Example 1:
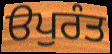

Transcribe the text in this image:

ੳਪੁਰੰਤ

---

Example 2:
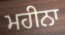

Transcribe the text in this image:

ਮਹੀਨਾ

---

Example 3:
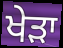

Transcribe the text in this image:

ਖੇੜਾ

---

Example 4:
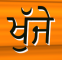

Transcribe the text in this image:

ਖੁੱਜੇ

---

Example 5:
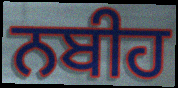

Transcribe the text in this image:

ਨਬੀਹ